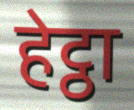
हेट्ठा